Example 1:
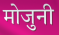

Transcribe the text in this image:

मोजुनी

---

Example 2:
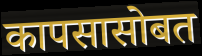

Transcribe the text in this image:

कापसासोबत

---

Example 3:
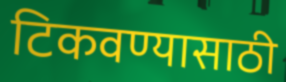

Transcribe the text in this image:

टिकवण्यासाठी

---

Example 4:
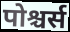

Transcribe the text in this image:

पोश्चर्स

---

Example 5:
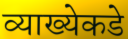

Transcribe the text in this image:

व्याख्येकडे